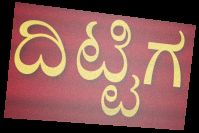
ದಿಟ್ಟಿಗ